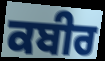
ਕਬੀਰ